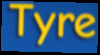
Tyre